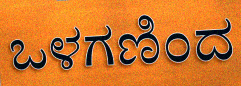
ಒಳಗಣಿಂದ